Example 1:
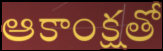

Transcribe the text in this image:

ఆకాంక్షతో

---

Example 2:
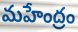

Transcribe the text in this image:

మహేంద్రం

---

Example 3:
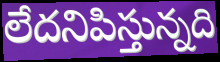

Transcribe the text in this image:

లేదనిపిస్తున్నది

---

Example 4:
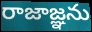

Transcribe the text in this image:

రాజాజ్ఞను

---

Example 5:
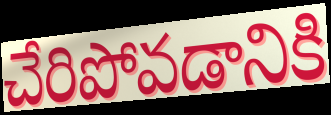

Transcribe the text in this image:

చేరిపోవడానికి